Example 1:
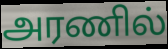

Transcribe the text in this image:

அரணில்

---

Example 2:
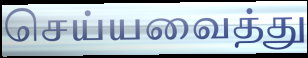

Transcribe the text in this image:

செய்யவைத்து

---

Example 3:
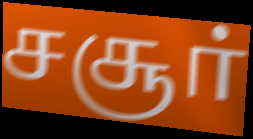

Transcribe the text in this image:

சசூர்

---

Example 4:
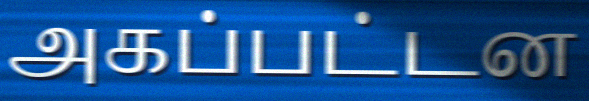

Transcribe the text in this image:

அகப்பட்டன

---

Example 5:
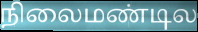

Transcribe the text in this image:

நிலைமண்டில